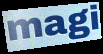
magi